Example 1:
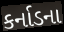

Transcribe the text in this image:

કર્નાડના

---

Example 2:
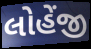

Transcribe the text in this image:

લોહેંજી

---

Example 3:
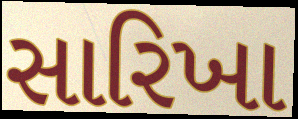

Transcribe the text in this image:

સારિખા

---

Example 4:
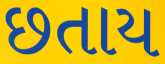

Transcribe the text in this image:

છતાય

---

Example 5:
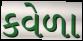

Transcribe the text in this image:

કવેળા